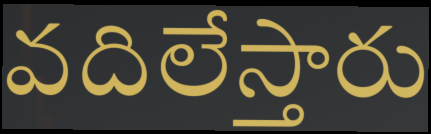
వదిలేస్తారు